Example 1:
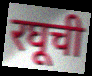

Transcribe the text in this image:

रघूची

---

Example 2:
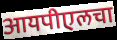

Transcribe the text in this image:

आयपीएलचा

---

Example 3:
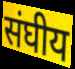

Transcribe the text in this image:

संघीय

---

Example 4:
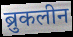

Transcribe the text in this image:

ब्रुकलीन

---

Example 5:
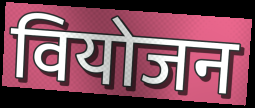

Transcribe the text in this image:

वियोजन